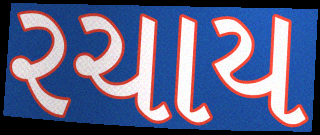
રચાય